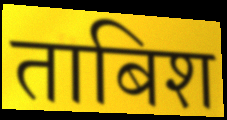
ताबिश